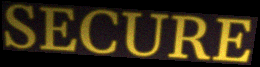
SECURE